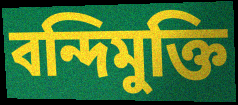
বন্দিমুক্তি